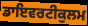
ਡਾਇਵਰਟੀਕੁਲਮ